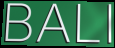
BALI